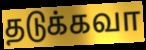
தடுக்கவா